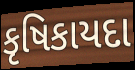
કૃષિકાયદા